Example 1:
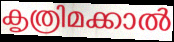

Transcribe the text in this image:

കൃത്രിമക്കാൽ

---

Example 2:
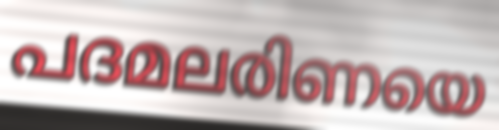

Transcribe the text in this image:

പദമലരിണയെ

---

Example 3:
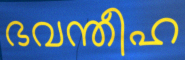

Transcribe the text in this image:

ഭവന്തീഹ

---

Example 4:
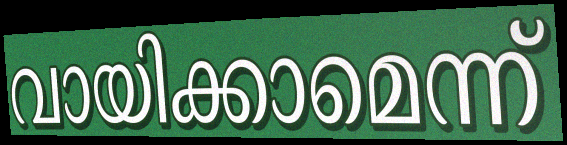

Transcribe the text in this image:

വായിക്കാമെന്ന്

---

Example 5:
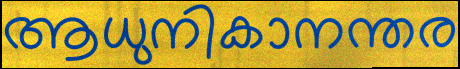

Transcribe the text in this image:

ആധുനികാനന്തര